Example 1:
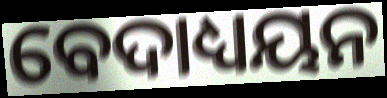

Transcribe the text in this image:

ବେଦାଧ୍ୟୟନ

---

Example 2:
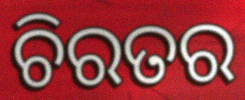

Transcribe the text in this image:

ଚିରତର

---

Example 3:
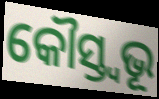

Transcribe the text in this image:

କୌସ୍ତ୍ୱଭୂ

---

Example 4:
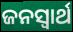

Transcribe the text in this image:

ଜନସ୍ଵାର୍ଥ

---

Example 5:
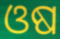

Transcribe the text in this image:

ଓଷ